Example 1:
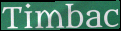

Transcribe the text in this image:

Timbac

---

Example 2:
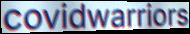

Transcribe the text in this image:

covidwarriors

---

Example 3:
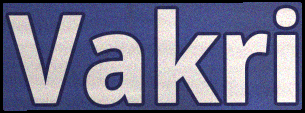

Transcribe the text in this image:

Vakri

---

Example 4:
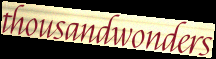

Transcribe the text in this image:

thousandwonders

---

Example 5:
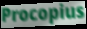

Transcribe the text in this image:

Procopius